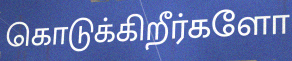
கொடுக்கிறீர்களோ